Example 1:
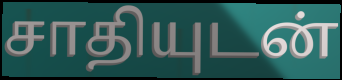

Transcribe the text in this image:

சாதியுடன்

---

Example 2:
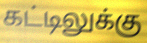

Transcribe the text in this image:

கட்டிலுக்கு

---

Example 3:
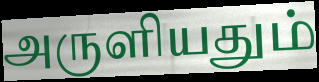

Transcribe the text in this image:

அருளியதும்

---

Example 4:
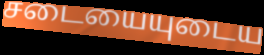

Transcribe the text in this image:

சடையையுடைய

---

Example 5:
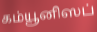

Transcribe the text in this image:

கம்யூனிஸப்